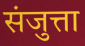
संजुत्ता